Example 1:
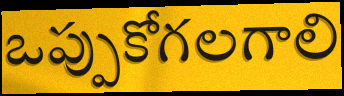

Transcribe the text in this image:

ఒప్పుకోగలగాలి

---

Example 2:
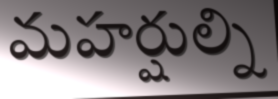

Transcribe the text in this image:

మహర్షుల్ని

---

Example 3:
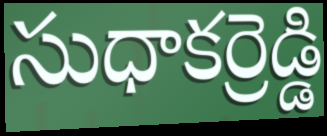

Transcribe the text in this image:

సుధాకర్రెడ్డి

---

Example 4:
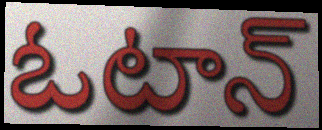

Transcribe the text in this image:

ఓటాన్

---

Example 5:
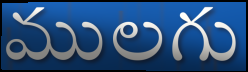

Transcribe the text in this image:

ములగు